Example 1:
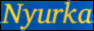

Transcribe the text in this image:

Nyurka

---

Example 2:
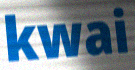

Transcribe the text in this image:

kwai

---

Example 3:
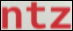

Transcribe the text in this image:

ntz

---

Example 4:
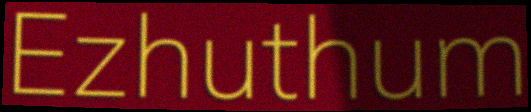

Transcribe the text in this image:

Ezhuthum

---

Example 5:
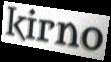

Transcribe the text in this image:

kirno